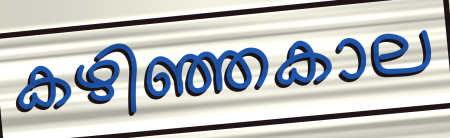
കഴിഞ്ഞകാല